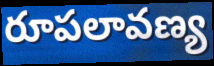
రూపలావణ్య